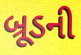
બ્રૂડની